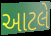
આટલે